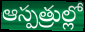
ఆస్పత్రుల్లో